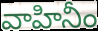
వాహినీం